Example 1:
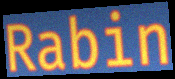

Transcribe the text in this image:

Rabin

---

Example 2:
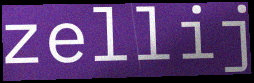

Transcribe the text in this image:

zellij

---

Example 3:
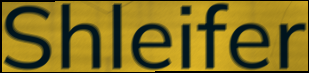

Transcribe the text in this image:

Shleifer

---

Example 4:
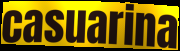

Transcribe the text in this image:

casuarina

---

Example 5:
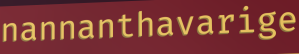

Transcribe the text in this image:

nannanthavarige